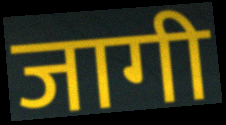
जागी